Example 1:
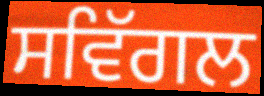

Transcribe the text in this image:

ਸਵਿੱਗਲ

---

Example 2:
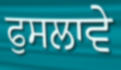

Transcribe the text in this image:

ਫੁਸਲਾਵੇ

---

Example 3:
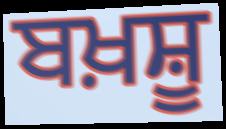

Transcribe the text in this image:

ਬਖ਼ਸ਼ੂ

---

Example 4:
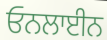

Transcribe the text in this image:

ਓਨਲਾਈਨ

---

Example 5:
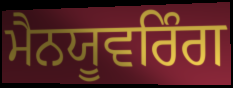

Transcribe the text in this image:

ਮੈਨਯੂਵਰਿੰਗ